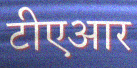
टीएआर